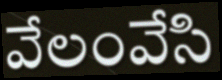
వేలంవేసి